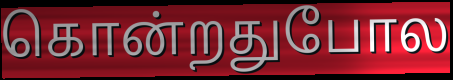
கொன்றதுபோல